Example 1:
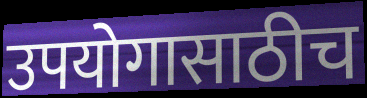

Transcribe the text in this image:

उपयोगासाठीच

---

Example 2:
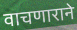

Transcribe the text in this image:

वाचणाराने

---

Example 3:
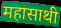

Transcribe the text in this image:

महासाथी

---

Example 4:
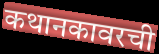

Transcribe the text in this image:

कथानकावरची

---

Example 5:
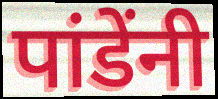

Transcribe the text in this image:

पांडेंनी